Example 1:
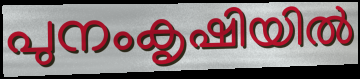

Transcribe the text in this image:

പുനംകൃഷിയിൽ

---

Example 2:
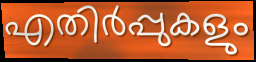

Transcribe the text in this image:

എതിർപ്പുകളും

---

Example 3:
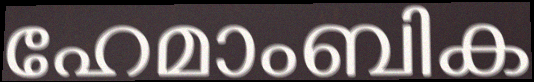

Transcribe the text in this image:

ഹേമാംബിക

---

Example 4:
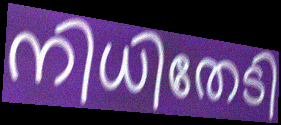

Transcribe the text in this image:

നിധിതേടി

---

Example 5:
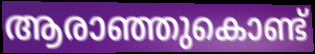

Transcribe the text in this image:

ആരാഞ്ഞുകൊണ്ട്